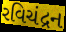
રવિચંદ્રન